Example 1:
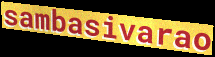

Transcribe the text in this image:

sambasivarao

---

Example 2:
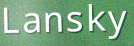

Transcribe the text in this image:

Lansky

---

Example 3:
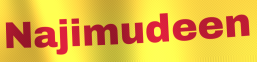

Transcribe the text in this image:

Najimudeen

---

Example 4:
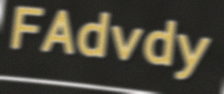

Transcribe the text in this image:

FAdvdy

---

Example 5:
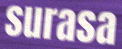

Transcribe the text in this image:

surasa